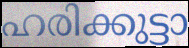
ഹരിക്കുട്ടാ